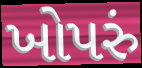
ખોપરું